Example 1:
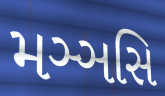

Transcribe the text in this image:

મઞ્ઞસિ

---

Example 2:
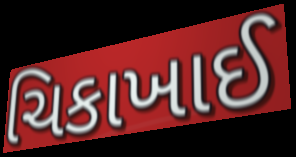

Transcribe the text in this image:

ચિકાખાઈ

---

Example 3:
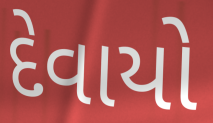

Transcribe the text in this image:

દેવાયો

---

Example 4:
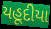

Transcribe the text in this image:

યહૂદીયા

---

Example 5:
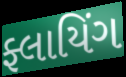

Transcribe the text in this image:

ફ્લાયિંગ